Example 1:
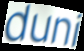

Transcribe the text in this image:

duni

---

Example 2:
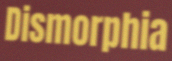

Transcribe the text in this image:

Dismorphia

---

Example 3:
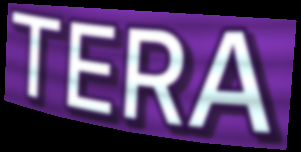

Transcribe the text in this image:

TERA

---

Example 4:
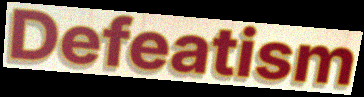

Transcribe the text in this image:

Defeatism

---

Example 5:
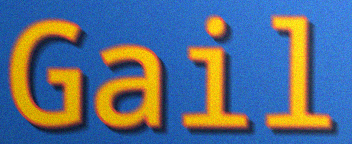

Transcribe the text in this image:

Gail